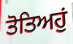
ਤੋਤਿਅਹੁਂ